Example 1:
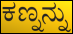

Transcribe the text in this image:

ಕಣ್ನನ್ನು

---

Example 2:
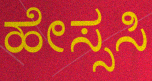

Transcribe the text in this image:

ಹೇಸ್ಸಸಿ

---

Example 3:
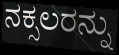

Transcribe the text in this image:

ನಕ್ಸಲರನ್ನು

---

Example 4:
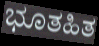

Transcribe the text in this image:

ಭೂತಹಿತ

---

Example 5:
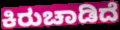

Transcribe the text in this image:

ಕಿರುಚಾಡಿದೆ